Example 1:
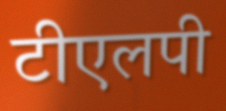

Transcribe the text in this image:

टीएलपी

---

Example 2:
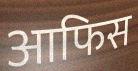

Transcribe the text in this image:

आफिस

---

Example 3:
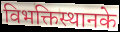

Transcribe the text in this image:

विभक्तिस्थानके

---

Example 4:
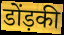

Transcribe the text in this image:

डोंड़की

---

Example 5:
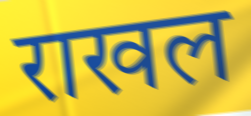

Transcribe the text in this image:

राखल